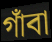
গাঁবা